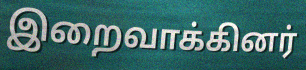
இறைவாக்கினர்